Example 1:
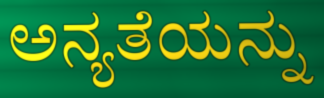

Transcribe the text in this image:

ಅನ್ಯತೆಯನ್ನು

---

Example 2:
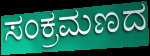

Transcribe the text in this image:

ಸಂಕ್ರಮಣದ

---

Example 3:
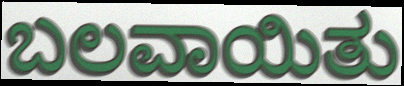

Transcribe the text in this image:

ಬಲವಾಯಿತು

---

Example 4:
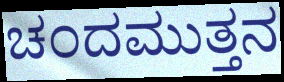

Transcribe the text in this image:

ಚಂದಮುತ್ತನ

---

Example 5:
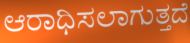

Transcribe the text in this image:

ಆರಾಧಿಸಲಾಗುತ್ತದೆ